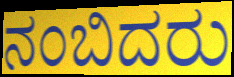
ನಂಬಿದರು